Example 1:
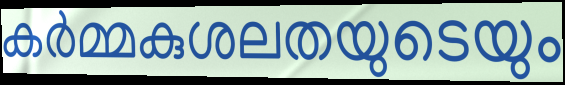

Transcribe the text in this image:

കർമ്മകുശലതയുടെയും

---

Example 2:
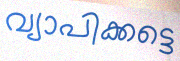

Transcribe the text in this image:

വ്യാപിക്കട്ടെ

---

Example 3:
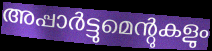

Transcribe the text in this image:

അപ്പാർട്ടുമെന്റുകളും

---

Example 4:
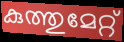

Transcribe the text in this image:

കുത്തുമേറ്റ്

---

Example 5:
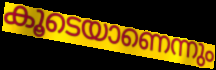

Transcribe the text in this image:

കൂടെയാണെന്നും